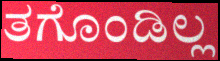
ತಗೊಂಡಿಲ್ಲ